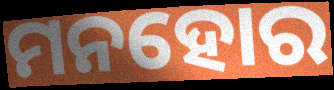
ମନହୋର